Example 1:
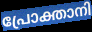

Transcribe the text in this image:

പ്രോക്താനി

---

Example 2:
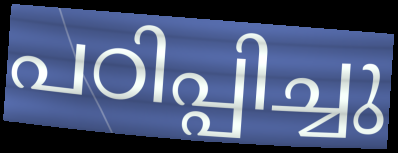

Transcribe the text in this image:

പഠിപ്പിച്ചു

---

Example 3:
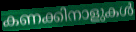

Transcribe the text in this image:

കണക്കിനാളുകൾ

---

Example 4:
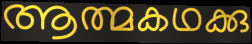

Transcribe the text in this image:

ആത്മകഥക്കു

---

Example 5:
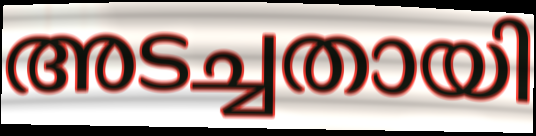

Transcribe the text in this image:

അടച്ചതായി